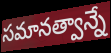
సమానత్వాన్నే